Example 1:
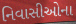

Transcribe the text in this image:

નિવાસીઓના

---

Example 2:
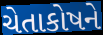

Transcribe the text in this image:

ચેતાકોષને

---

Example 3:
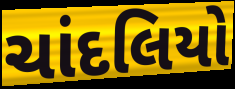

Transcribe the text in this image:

ચાંદલિયો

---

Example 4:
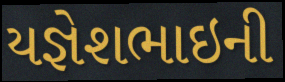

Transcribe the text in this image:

યજ્ઞેશભાઇની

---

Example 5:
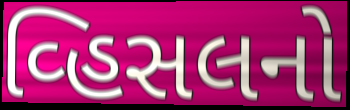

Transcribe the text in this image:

વ્હિસલનો